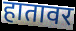
हातावर